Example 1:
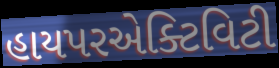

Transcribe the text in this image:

હાયપરએક્ટિવિટી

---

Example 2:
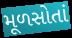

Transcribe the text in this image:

મૂળસોતાં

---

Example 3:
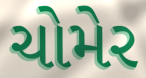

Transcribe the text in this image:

ચોમેર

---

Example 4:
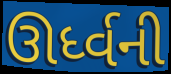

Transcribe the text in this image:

ઊર્ધ્વની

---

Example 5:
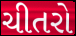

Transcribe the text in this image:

ચીતરો